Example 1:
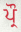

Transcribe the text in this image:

ਪ੍ਰੌ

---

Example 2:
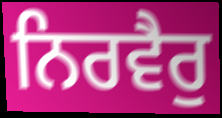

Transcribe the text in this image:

ਨਿਰਵੈਰੁ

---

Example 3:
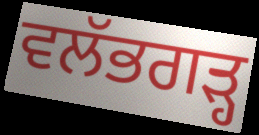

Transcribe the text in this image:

ਵਲੱਭਗੜ੍ਹ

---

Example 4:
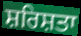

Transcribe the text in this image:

ਸ਼ਰਿਸ਼ਤਾ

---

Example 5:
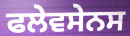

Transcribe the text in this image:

ਫਲੇਵਸੇਨਸ